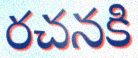
రచనకి